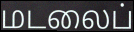
மடலைப்